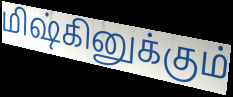
மிஷ்கினுக்கும்